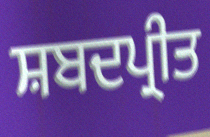
ਸ਼ਬਦਪ੍ਰੀਤ